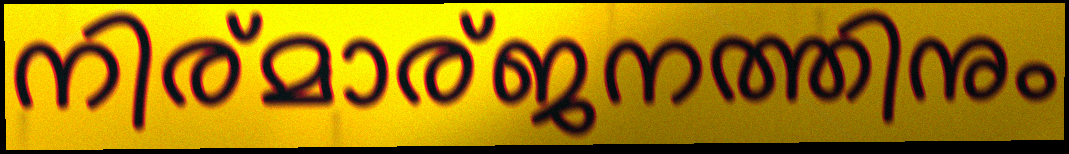
നിര്മാര്ജനത്തിനും